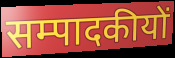
सम्पादकीयों